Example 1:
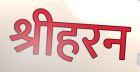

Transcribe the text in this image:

श्रीहरन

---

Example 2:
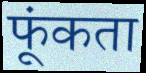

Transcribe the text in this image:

फूंकता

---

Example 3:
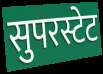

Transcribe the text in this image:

सुपरस्टेट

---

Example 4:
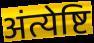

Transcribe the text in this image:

अंत्येष्टि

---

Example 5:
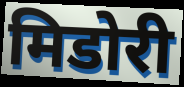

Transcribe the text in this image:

मिडोरी